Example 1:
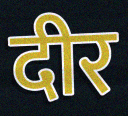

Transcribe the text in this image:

दीर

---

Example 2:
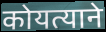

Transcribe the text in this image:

कोयत्याने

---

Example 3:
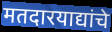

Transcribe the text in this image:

मतदारयाद्यांचे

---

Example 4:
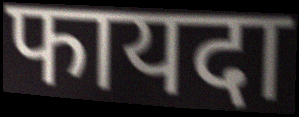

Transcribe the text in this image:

फायदा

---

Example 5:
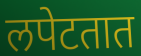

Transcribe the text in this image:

लपेटतात